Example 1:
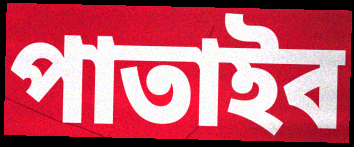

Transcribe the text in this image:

পাতাইব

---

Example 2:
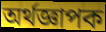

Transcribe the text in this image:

অর্থজ্ঞাপক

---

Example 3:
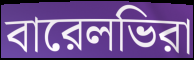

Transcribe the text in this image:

বারেলভিরা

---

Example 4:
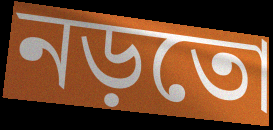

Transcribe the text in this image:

নড়তো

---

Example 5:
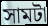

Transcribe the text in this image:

সামটা